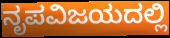
ನೃಪವಿಜಯದಲ್ಲಿ